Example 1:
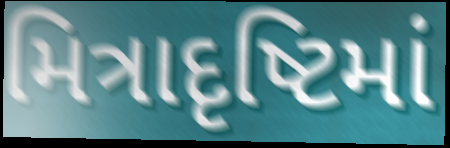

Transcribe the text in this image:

મિત્રાદૃષ્ટિમાં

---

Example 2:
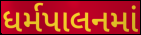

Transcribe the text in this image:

ધર્મપાલનમાં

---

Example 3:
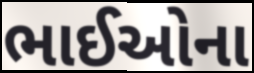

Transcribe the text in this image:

ભાઈઓના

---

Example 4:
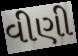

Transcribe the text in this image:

વીણી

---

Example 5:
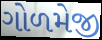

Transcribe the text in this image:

ગોળમેજી